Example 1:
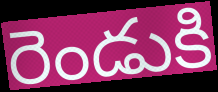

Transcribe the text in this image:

రెండుకి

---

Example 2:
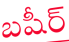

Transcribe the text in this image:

బషీర్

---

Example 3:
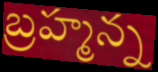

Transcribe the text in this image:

బ్రహ్మన్న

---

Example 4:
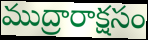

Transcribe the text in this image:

ముద్రారాక్షసం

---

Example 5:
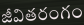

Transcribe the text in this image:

జీవితరంగం